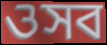
ওসব